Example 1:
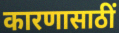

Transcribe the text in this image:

कारणासाठीं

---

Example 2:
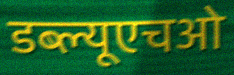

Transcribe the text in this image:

डब्ल्यूएचओ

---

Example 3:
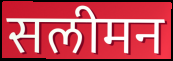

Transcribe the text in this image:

सलीमन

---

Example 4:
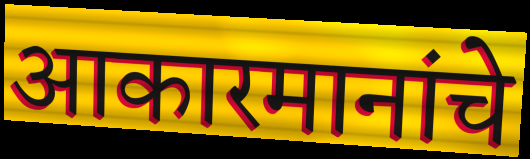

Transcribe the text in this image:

आकारमानांचे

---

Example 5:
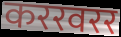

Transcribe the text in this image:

कररवरर